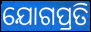
ଯୋଗପ୍ରତି